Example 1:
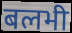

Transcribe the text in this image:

बलभी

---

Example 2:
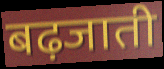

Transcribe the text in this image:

बढ़जाती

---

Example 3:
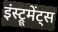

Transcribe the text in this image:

इंस्ट्रूमेंट्स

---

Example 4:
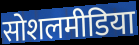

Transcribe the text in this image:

सोशलमीडिया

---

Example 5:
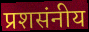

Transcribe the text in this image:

प्रशसंनीय